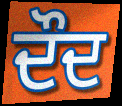
ਦੌਦ